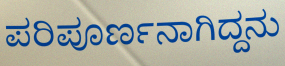
ಪರಿಪೂರ್ಣನಾಗಿದ್ದನು